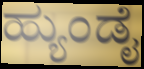
ಹ್ಯುಂಡೈ